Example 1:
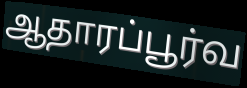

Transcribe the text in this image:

ஆதாரப்பூர்வ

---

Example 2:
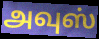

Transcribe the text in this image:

அவுஸ்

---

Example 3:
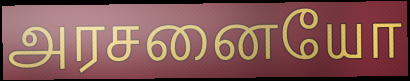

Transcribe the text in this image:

அரசனையோ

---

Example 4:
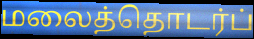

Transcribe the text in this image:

மலைத்தொடர்ப்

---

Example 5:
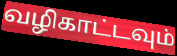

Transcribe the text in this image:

வழிகாட்டவும்